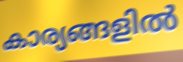
കാര്യങ്ങളിൽ